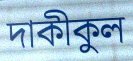
দাকীকুল